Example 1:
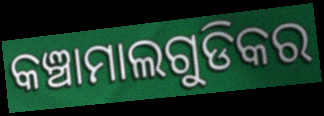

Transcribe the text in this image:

କଞ୍ଚାମାଲଗୁଡିକର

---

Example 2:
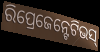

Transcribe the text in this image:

ରିପ୍ରେଜେନ୍ଟେଟିଭସ୍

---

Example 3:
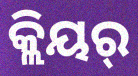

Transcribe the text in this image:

କ୍ଲିୟର୍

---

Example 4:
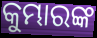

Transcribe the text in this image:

କୁମ୍ଭାରଙ୍କ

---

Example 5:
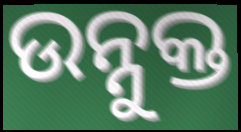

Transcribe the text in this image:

ଉନ୍ନୁକ୍ତ